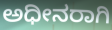
ಅಧೀನರಾಗಿ